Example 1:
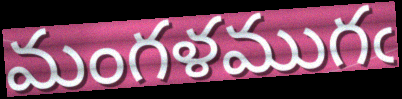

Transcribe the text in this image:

మంగళముగఁ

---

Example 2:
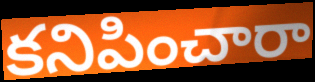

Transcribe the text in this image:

కనిపించారా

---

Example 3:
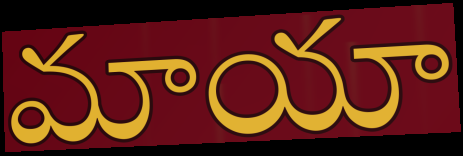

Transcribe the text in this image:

మాయా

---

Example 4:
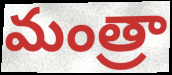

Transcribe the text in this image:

మంత్రా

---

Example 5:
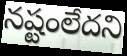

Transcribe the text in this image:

నష్టంలేదని